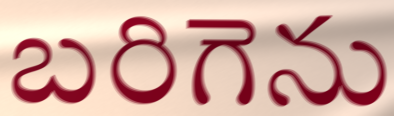
బరిగెను